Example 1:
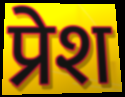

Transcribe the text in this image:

प्रेश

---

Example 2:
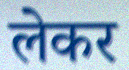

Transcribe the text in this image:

लेकर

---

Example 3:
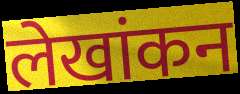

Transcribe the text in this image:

लेखांकन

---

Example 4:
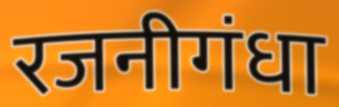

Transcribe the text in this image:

रजनीगंधा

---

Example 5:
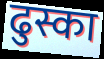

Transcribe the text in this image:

ढुस्का